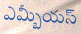
ఎమ్బీయస్